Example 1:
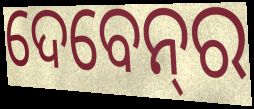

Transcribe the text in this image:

ଦେବେନ୍‌ର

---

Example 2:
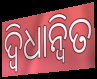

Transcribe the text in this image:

ଦ୍ଵିଧାନ୍ୱିତ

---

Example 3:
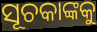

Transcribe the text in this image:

ସୂଚକାଙ୍କକୁ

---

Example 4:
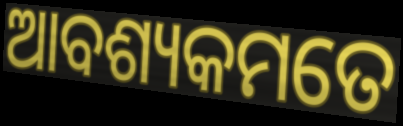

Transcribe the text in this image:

ଆବଶ୍ୟକମତେ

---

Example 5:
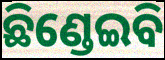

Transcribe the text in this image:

ଛିଣ୍ଡେଇବି